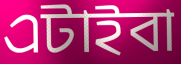
এটাইবা